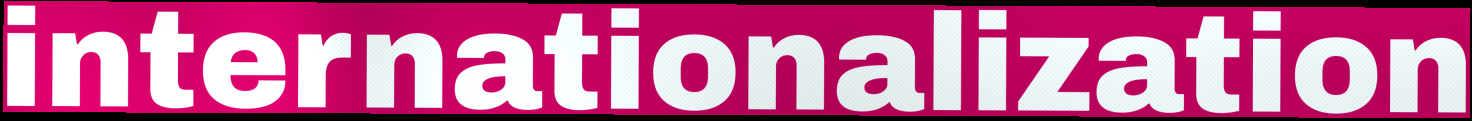
internationalization